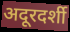
अदूरदर्शी